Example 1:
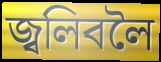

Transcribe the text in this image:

জ্বলিবলৈ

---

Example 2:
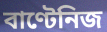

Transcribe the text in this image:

বাণ্টেনিজ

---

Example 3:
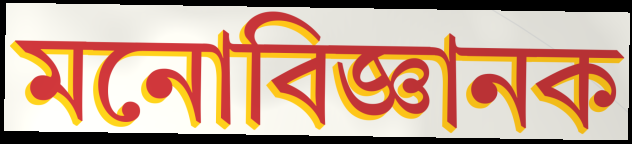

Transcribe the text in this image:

মনোবিজ্ঞানক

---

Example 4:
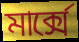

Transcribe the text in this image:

মাৰ্ক্সে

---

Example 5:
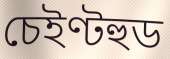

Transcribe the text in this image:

চেইণ্টহুড